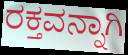
ರಕ್ತವನ್ನಾಗಿ